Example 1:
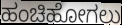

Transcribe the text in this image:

ಹಂಚಿಹೋಗಲು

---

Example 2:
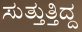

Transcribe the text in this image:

ಸುತ್ತುತ್ತಿದ್ದ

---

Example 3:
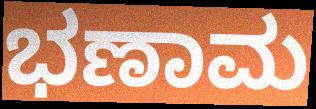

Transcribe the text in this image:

ಭಣಾಮ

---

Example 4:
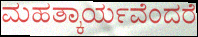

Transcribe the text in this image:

ಮಹತ್ಕಾರ್ಯವೆಂದರೆ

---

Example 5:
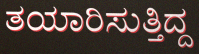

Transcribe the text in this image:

ತಯಾರಿಸುತ್ತಿದ್ದ